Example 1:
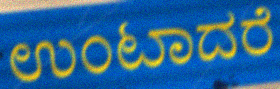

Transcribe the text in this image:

ಉಂಟಾದರೆ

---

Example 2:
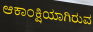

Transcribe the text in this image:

ಆಕಾಂಕ್ಷಿಯಾಗಿರುವ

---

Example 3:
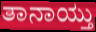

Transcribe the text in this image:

ತಾನಾಯ್ತು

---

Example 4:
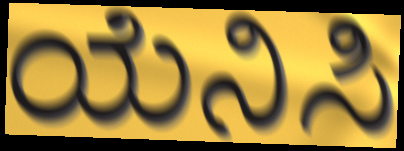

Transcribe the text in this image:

ಯೆನಿಸಿ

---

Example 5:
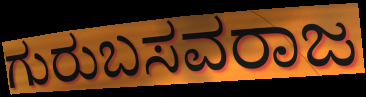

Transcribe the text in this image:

ಗುರುಬಸವರಾಜ